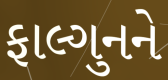
ફાલ્ગુનને